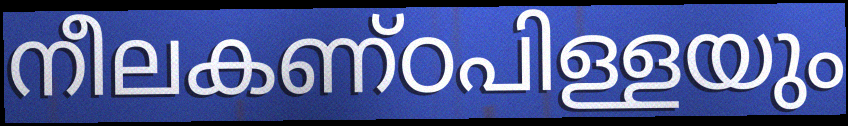
നീലകണ്ഠപിള്ളയും